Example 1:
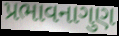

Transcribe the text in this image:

પ્રભાવનાગુણ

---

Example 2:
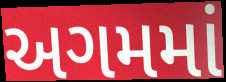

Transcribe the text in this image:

અગમમાં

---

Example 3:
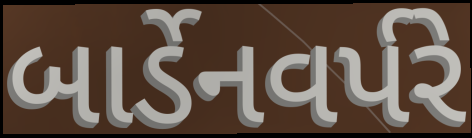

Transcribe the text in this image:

બાર્ડેનવર્પરે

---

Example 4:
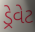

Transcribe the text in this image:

ડ્રેવેટ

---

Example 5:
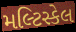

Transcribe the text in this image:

મલ્ટિસ્કેલ